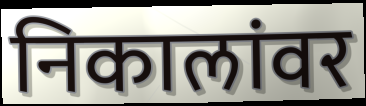
निकालांवर